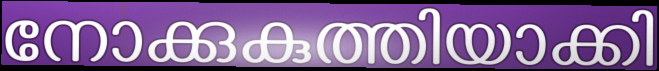
നോക്കുകുത്തിയാക്കി